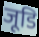
जूडि